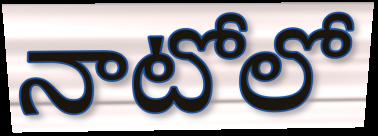
నాటోలో